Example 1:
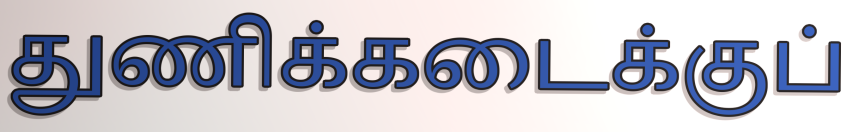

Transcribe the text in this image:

துணிக்கடைக்குப்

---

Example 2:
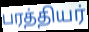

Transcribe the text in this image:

பரத்தியர்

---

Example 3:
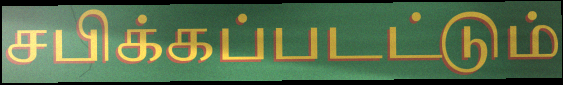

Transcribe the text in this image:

சபிக்கப்படட்டும்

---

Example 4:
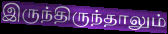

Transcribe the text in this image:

இருந்திருந்தாலும்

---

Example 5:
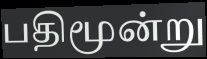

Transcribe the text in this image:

பதிமூன்று